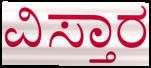
ವಿಸ್ತಾರ